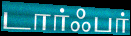
டார்ஃபர்